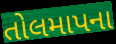
તોલમાપના